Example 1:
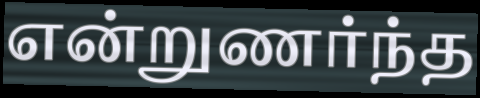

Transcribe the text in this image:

என்றுணர்ந்த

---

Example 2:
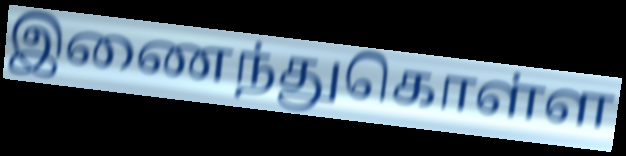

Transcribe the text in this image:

இணைந்துகொள்ள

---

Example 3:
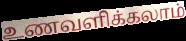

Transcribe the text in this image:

உணவளிக்கலாம்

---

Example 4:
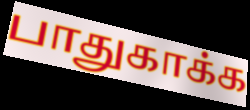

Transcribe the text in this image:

பாதுகாக்க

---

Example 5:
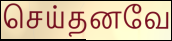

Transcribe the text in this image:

செய்தனவே